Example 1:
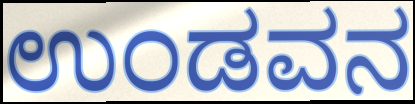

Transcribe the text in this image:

ಉಂಡವನ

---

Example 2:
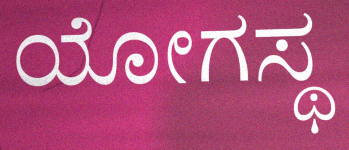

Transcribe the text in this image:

ಯೋಗಸ್ಥ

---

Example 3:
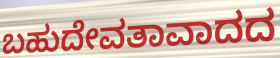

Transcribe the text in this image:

ಬಹುದೇವತಾವಾದದ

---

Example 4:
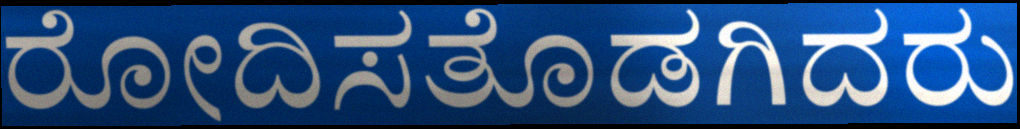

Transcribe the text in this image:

ರೋದಿಸತೊಡಗಿದರು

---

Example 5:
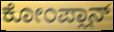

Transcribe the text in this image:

ಕೋಂಪ್ಲಾನ್